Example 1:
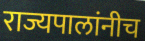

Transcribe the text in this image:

राज्यपालांनीच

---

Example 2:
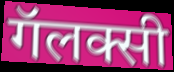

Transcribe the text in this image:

गॅलक्सी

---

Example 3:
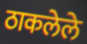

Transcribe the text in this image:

ठाकलेले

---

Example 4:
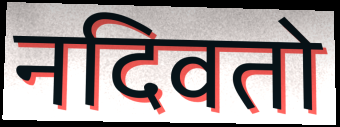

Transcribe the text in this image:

नदिवतो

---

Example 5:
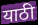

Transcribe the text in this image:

याठी